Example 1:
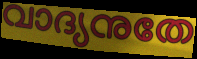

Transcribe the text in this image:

വാദ്യനുതേ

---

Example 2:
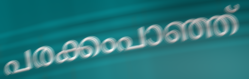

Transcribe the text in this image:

പരക്കംപാഞ്ഞ്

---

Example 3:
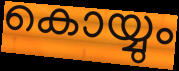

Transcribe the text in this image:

കൊയ്യും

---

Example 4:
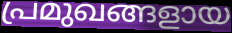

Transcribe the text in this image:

പ്രമുഖങ്ങളായ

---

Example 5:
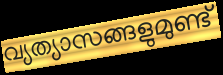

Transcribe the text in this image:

വ്യത്യാസങ്ങളുമുണ്ട്